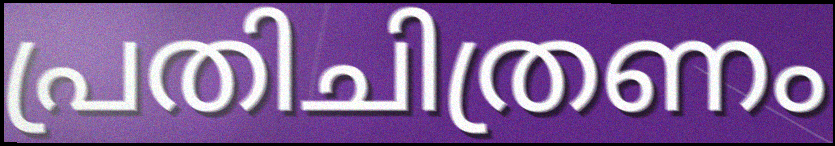
പ്രതിചിത്രണം